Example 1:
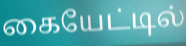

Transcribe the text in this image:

கையேட்டில்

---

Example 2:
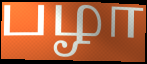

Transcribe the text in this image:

பழா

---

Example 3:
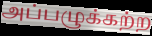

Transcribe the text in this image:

அப்பழுக்கற்ற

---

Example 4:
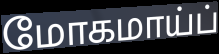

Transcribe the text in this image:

மோகமாய்ப்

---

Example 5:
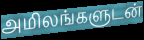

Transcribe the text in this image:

அமிலங்களுடன்